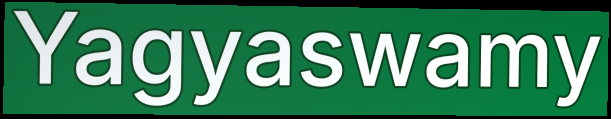
Yagyaswamy